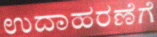
ಉದಾಹರಣೆಗೆ